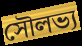
সৌলভ্য